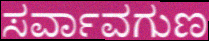
ಸರ್ವಾವಗುಣ